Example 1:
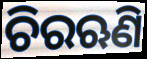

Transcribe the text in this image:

ଚିରଋଣି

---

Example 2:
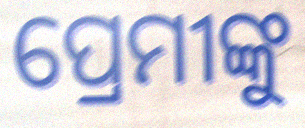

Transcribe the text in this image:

ପ୍ରେମୀଙ୍କୁ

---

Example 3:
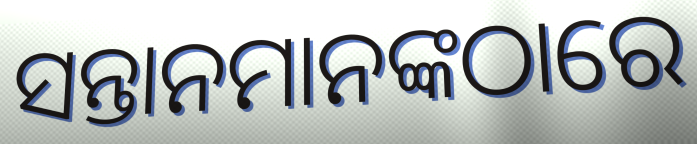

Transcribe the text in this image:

ସନ୍ତାନମାନଙ୍କଠାରେ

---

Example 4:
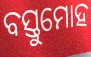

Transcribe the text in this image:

ବସ୍ତୁମୋହ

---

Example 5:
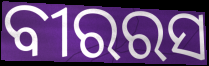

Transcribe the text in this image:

ବୀରରସ